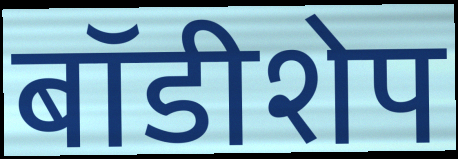
बॉडीशेप